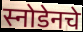
स्नोडेनचे